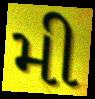
મી